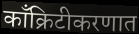
काँक्रिटीकरणात